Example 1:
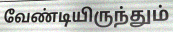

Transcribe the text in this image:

வேண்டியிருந்தும்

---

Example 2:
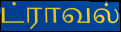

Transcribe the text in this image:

ட்ராவல்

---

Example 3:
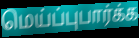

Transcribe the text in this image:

மெய்ப்புபார்க்க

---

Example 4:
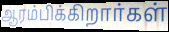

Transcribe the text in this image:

ஆரம்பிக்கிறார்கள்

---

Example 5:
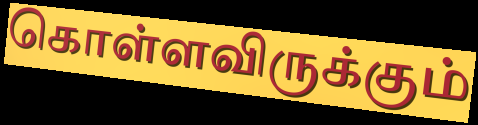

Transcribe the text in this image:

கொள்ளவிருக்கும்